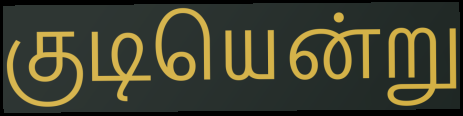
குடியென்று